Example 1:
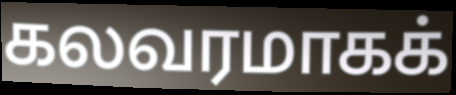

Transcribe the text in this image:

கலவரமாகக்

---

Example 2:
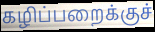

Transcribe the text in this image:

கழிப்பறைக்குச்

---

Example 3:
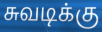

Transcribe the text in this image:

சுவடிக்கு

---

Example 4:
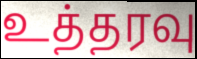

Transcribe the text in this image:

உத்தரவு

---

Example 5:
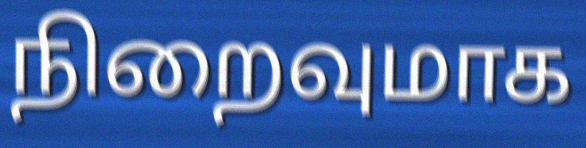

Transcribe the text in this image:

நிறைவுமாக